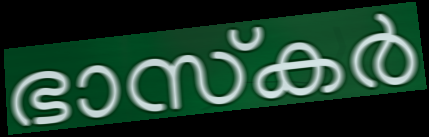
ഭാസ്‌കർ